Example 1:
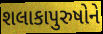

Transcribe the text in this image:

શલાકાપુરુષોને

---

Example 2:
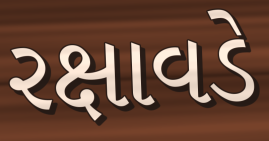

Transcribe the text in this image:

રક્ષાવડે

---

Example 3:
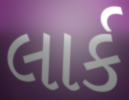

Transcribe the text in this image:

લાર્ક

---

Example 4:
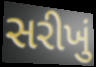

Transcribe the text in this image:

સરીખું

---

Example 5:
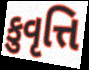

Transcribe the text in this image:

કુવૃત્તિ